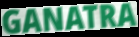
GANATRA